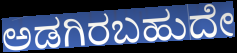
ಅಡಗಿರಬಹುದೇ